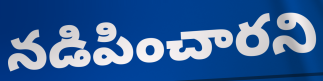
నడిపించారని